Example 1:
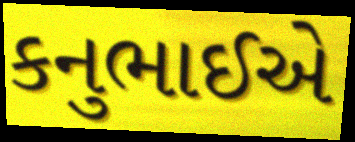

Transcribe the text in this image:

કનુભાઈએ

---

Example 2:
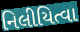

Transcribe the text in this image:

નિલીયિત્વા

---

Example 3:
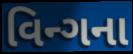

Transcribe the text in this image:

વિન્ગના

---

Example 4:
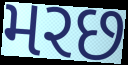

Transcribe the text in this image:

મરછ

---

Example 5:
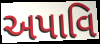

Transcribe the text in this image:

અપાવિ